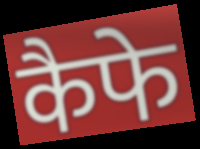
कैफे